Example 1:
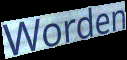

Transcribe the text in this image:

Worden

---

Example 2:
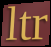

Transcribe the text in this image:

ltr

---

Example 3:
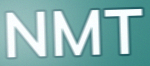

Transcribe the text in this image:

NMT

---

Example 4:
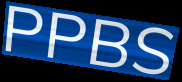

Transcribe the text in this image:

PPBS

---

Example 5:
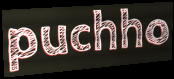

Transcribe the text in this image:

puchho